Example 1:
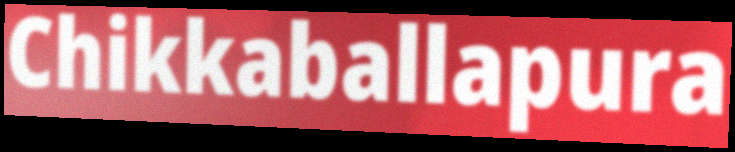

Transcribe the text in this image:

Chikkaballapura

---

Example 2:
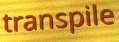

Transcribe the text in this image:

transpile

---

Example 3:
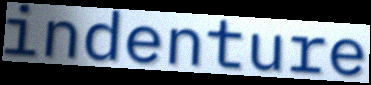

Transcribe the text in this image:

indenture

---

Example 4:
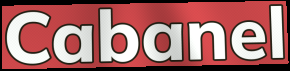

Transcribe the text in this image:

Cabanel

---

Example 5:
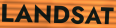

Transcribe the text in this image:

LANDSAT